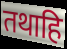
तथाहि